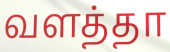
வளத்தா